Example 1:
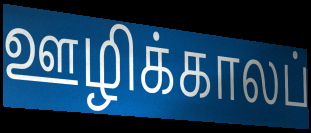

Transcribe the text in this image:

ஊழிக்காலப்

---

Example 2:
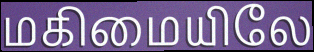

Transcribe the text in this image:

மகிமையிலே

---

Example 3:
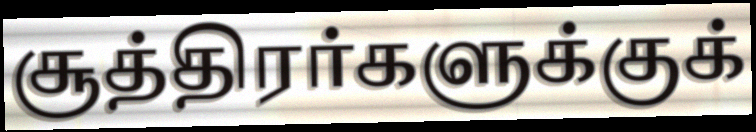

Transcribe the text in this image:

சூத்திரர்களுக்குக்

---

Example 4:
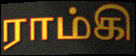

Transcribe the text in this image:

ராம்கி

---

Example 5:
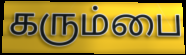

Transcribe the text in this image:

கரும்பை